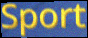
Sport